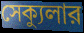
সেক্যুলার